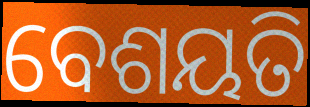
ବେଶୟତି